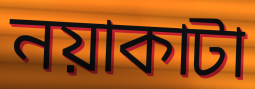
নয়াকাটা